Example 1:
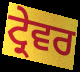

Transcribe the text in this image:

ਟ੍ਰੇਵਰ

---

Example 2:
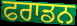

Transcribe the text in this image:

ਫਰਾਡਨ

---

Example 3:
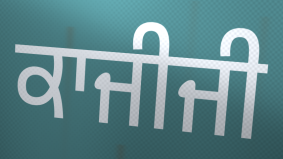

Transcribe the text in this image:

ਕਾਜੀਜੀ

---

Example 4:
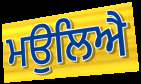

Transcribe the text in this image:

ਮਉਲਿਐ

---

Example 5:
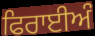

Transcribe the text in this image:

ਫਿਰਾਈਅੰ